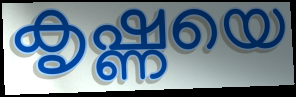
കൃഷ്ണയെ